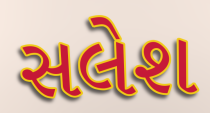
સલેશ